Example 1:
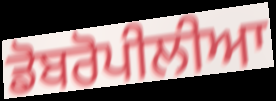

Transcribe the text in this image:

ਡੋਬਰੋਪੀਲੀਆ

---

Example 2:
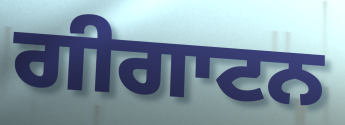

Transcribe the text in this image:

ਗੀਗਾਟਨ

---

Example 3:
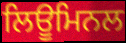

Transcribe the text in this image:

ਲਿਊਮਿਨਲ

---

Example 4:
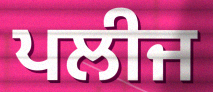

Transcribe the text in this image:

ਪਲੀਜ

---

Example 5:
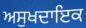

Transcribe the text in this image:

ਅਸੁਖਦਾਇਕ